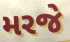
મરજે